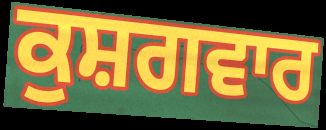
ਕੁਸ਼ਗਵਾਰ